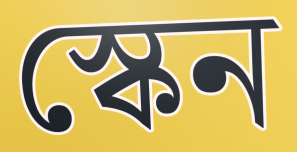
স্কেন